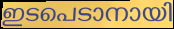
ഇടപെടാനായി